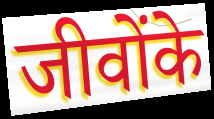
जीवोंके